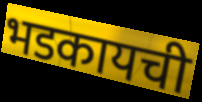
भडकायची